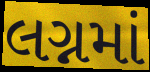
લગ્નમાં